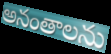
అనంతాలను